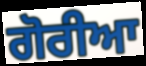
ਗੋਰੀਆ